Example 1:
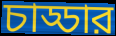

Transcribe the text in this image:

চাড্ডার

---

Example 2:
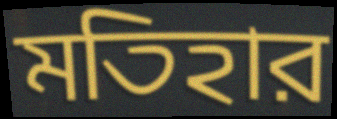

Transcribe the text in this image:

মতিহার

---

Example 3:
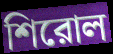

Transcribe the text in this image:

শিরোল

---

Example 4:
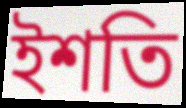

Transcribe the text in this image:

ইশতি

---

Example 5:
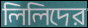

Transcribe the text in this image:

লিলিদের